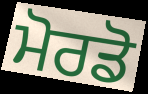
ਮੋਰਡੋ